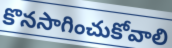
కొనసాగించుకోవాలి